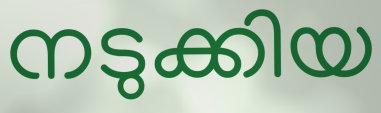
നടുക്കിയ